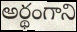
అర్థంగాని